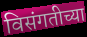
विसंगतीच्या